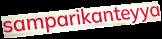
samparikanteyya